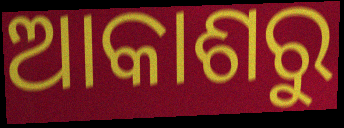
ଆକାଶରୁ